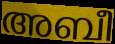
അബീ